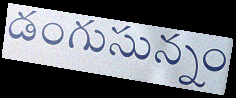
డంగుసున్నం